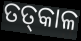
ତତ୍‌କାଳ